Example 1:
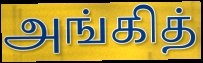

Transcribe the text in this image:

அங்கித்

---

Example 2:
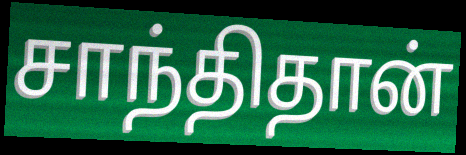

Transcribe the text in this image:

சாந்திதான்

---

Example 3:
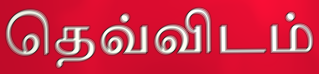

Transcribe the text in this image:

தெவ்விடம்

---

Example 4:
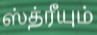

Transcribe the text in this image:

ஸ்த்ரீயும்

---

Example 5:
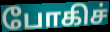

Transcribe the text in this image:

போகிச்